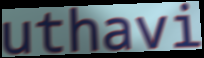
uthavi